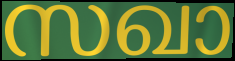
സഖാ